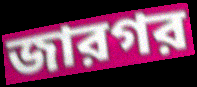
জারগর